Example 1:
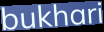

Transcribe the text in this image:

bukhari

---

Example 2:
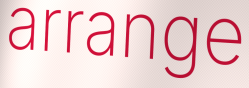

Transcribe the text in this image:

arrange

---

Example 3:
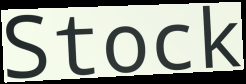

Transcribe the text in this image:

Stock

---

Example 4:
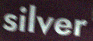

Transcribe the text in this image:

silver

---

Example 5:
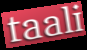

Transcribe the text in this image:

taali